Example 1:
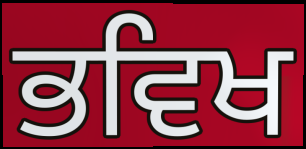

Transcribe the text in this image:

ਭਵਿਖ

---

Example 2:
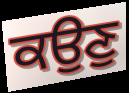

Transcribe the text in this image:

ਕਉਣੁ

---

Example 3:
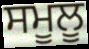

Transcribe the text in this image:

ਸਮੂਲੂ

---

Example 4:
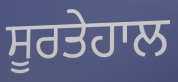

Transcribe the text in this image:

ਸੂਰਤੇਹਾਲ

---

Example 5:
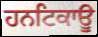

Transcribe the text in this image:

ਹਨਟਿਕਾਊ